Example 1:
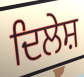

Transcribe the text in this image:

ਦਿਲੇਸ਼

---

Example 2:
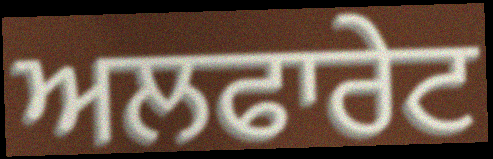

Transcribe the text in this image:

ਅਲਫਾਰੇਟ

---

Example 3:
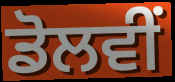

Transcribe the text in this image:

ਡੋਲਵੀਂ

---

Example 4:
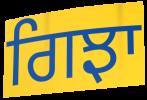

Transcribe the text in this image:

ਗਿਝਾ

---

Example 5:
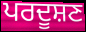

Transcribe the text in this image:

ਪਰਦੂਸ਼ਣ